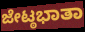
ಜೇಟ್ಠಭಾತಾ